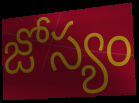
జోస్యం